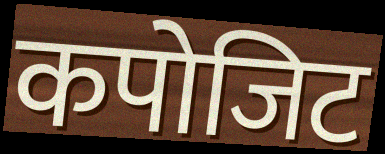
कपोजिट